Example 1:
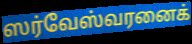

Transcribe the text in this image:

ஸர்வேஸ்வரனைக்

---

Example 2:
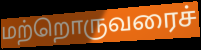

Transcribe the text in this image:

மற்றொருவரைச்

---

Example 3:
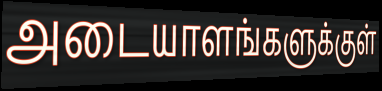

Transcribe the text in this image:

அடையாளங்களுக்குள்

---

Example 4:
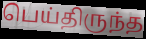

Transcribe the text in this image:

பெய்திருந்த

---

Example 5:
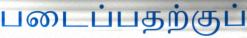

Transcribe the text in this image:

படைப்பதற்குப்